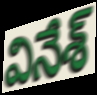
వినేశ్